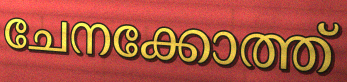
ചേനക്കോത്ത്